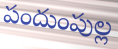
పందుంపుల్ల